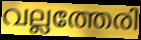
വല്ലത്തേരി